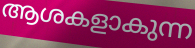
ആശകളാകുന്ന